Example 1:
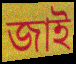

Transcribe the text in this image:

জাই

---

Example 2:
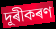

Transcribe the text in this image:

দূৰীকৰণ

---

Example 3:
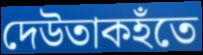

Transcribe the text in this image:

দেউতাকহঁতে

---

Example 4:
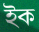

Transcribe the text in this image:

ইক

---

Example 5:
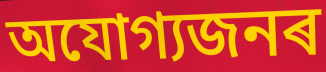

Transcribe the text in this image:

অযোগ্যজনৰ